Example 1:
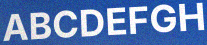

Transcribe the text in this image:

ABCDEFGH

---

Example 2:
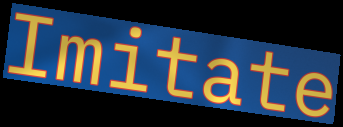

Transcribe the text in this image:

Imitate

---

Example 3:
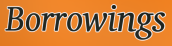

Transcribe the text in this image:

Borrowings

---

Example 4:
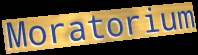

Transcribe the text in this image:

Moratorium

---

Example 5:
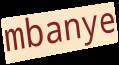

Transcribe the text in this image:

mbanye